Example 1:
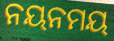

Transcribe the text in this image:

ନୟନମୟ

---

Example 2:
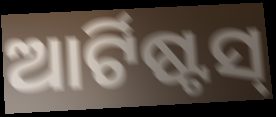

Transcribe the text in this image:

ଆର୍ଟିଷ୍ଟସ୍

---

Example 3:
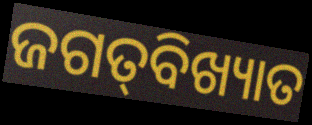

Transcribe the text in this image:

ଜଗତ୍‌ବିଖ୍ୟାତ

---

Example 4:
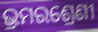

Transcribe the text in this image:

ଭ୍ରମରଶ୍ରେଣୀ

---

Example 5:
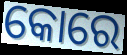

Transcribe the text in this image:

କୋରେ